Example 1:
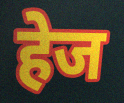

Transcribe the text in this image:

हेज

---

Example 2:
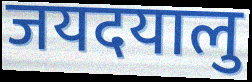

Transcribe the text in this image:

जयदयालु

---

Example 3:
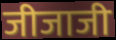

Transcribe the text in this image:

जीजाजी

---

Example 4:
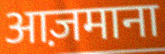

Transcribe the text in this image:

आज़माना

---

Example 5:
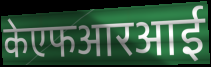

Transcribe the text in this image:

केएफआरआई